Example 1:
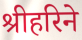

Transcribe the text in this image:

श्रीहरिने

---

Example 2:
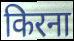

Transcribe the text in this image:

किरना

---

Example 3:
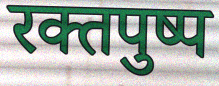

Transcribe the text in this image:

रक्तपुष्प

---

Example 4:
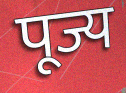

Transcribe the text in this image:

पूज्य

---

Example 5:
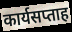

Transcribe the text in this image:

कार्यसप्ताह